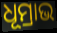
ଧୂମ୍ରାଭ